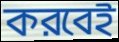
করবেই